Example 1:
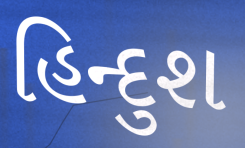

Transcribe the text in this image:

હિન્દુશ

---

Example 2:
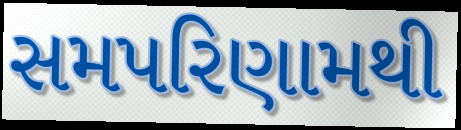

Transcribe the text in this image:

સમપરિણામથી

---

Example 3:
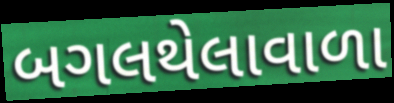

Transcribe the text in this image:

બગલથેલાવાળા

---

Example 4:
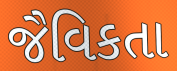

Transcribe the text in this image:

જૈવિકતા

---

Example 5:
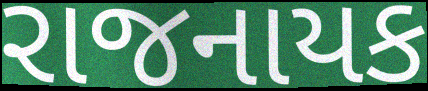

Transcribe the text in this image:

રાજનાયક